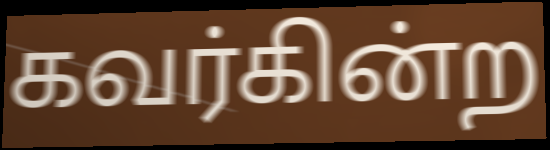
கவர்கின்ற